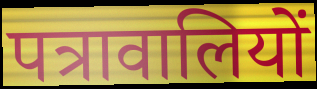
पत्रावालियों